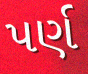
પર્ણ